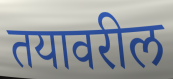
तयावरील